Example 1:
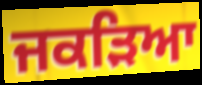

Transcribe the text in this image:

ਜਕੜਿਆ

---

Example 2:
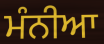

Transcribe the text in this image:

ਮੰਨੀਆ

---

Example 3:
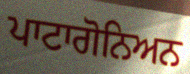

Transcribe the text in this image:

ਪਾਟਾਗੋਨਿਅਨ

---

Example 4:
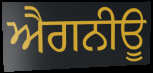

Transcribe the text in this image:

ਐਗਨੀਊ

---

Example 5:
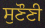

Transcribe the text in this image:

ਸੁਣੌਣੀ